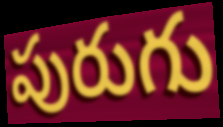
పురుగు